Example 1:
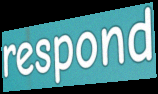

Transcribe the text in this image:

respond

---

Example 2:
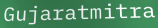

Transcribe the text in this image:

Gujaratmitra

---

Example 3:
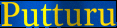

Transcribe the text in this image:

Putturu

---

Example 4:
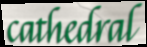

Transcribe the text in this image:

cathedral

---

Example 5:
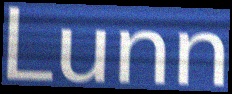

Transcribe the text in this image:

Lunn